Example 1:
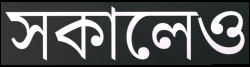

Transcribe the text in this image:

সকালেও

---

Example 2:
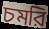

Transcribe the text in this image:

চমরি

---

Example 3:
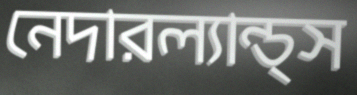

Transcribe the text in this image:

নেদারল্যান্ড্‌স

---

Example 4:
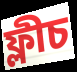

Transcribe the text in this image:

ফ্লীচ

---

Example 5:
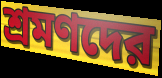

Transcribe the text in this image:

শ্রমণদের